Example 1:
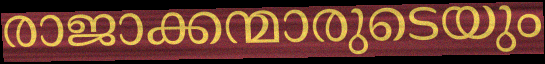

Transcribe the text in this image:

രാജാക്കന്മാരുടെയും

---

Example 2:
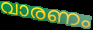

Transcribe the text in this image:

വാരണം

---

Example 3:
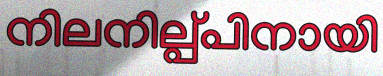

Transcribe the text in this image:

നിലനില്പ്പിനായി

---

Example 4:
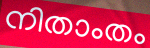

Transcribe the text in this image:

നിതാംതം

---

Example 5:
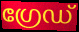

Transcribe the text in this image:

ഗ്രേഡ്